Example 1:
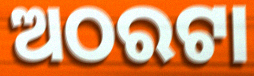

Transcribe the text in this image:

ଅଠରଟା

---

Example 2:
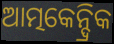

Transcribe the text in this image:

ଆତ୍ମକେନ୍ଦ୍ରିକ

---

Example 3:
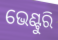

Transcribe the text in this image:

ଭେଣ୍ଟୁରି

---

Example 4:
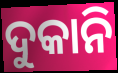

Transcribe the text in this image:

ଦୁକାନି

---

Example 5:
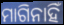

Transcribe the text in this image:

ମାଗିନାହିଁ